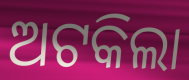
ଅଟକିଲା